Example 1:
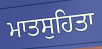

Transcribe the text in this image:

ਮਾਤਸੁਹਿਤਾ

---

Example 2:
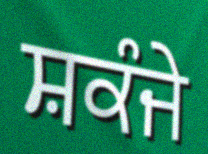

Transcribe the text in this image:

ਸ਼ਕੰਜੇ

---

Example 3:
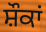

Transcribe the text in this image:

ਸ਼ੌਕਾਂ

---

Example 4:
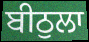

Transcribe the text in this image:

ਬੀਠੁਲਾ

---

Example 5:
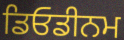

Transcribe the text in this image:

ਡਿਓਡੀਨਮ